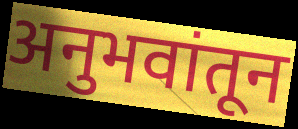
अनुभवांतून